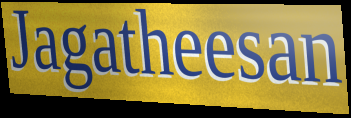
Jagatheesan